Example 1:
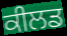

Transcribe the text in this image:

ਕੀਲਡ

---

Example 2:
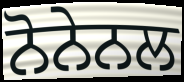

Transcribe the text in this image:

ਨੋਨੇਨਲ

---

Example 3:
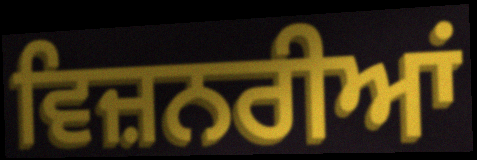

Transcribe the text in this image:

ਵਿਜ਼ਨਰੀਆਂ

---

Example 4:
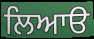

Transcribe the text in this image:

ਲਿਆੳ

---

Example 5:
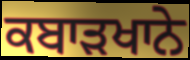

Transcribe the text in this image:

ਕਬਾੜਖਾਨੇ